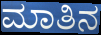
ಮಾತಿನ